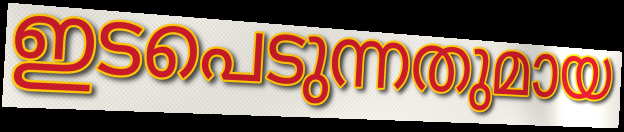
ഇടപെടുന്നതുമായ